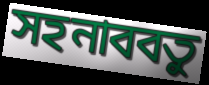
সহনাববতু